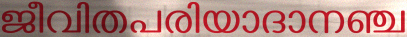
ജീവിതപരിയാദാനഞ്ച